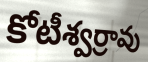
కోటీశ్వర్రావు